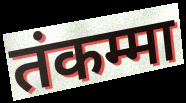
तंकम्मा